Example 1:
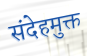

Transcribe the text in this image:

संदेहमुक्त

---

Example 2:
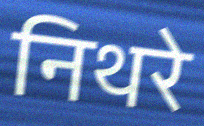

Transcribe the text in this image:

निथरे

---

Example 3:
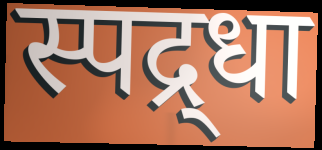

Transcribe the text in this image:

स्पद्र्धा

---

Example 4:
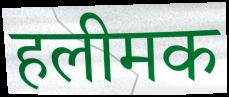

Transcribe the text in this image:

हलीमक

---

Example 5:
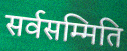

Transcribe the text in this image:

सर्वसम्मिति